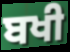
ਬਖੀ